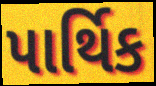
પાર્થિક